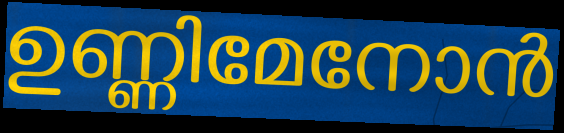
ഉണ്ണിമേനോൻ